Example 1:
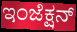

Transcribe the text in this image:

ಇಂಜೆಕ್ಷನ್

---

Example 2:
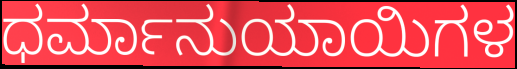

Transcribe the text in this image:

ಧರ್ಮಾನುಯಾಯಿಗಳ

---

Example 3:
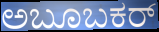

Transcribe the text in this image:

ಅಬೂಬಕರ್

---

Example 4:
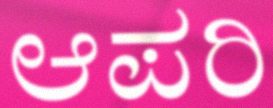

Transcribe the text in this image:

ಆಪರಿ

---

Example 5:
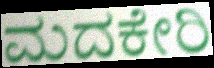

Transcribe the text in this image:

ಮದಕೇರಿ